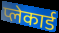
प्लेकार्ड